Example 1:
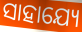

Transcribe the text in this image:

ସାହାଯ୍ୟେ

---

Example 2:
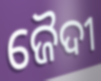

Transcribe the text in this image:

ଜୈଦୀ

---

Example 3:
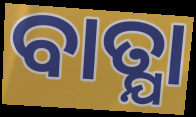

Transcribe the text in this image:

ବାତ୍ଯା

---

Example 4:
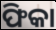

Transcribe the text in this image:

ଫିକା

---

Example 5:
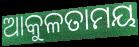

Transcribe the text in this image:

ଆକୁଳତାମୟ